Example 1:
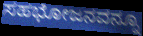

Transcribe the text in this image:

ಸಹಭೋಜನವನ್ನೂ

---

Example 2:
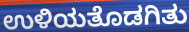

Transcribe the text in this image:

ಉಳಿಯತೊಡಗಿತು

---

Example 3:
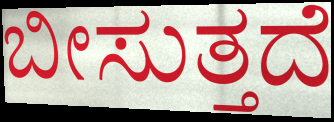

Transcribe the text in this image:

ಬೀಸುತ್ತದೆ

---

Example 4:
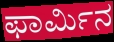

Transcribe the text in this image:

ಫಾರ್ಮಿನ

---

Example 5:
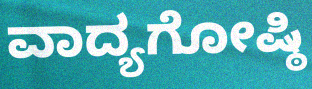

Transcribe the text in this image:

ವಾದ್ಯಗೋಷ್ಠಿ